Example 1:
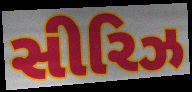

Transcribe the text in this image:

સીરિઝ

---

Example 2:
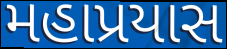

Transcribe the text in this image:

મહાપ્રયાસ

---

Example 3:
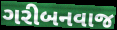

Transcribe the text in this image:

ગરીબનવાજ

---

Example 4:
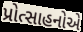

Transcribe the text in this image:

પ્રોત્સાહનોએ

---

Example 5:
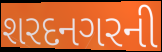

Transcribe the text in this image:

શરદનગરની